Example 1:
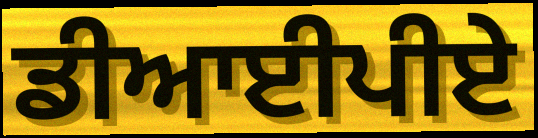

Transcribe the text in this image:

ਡੀਆਈਪੀਏ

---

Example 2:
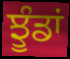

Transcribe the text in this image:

ਝੂੰਡਾਂ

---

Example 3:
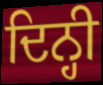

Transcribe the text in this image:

ਦਿਨ੍ਹੀ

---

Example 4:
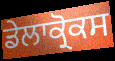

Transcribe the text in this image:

ਡੇਲਾਕ੍ਰੋਕਸ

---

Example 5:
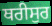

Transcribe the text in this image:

ਥਰੀਸੁਰ